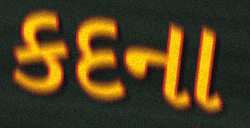
કદના